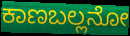
ಕಾಣಬಲ್ಲನೋ